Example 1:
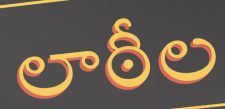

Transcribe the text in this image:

లాఠీల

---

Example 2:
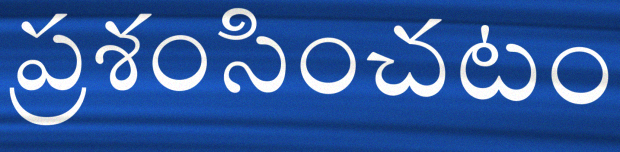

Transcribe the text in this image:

ప్రశంసించటం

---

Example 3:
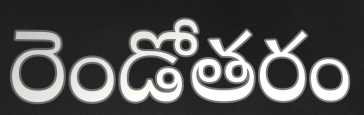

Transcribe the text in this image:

రెండోతరం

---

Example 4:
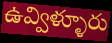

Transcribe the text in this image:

ఉవ్విళ్ళూరు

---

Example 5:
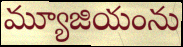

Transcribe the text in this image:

మ్యూజియంను